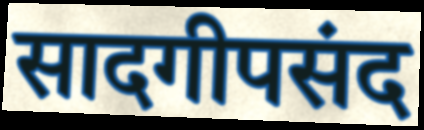
सादगीपसंद